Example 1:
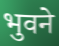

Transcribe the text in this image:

भुवने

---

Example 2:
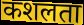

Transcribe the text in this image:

कशलता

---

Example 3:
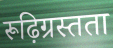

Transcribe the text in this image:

रूढ़िग्रस्तता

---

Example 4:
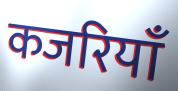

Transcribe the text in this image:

कजरियाँ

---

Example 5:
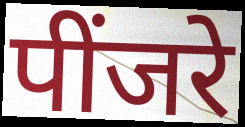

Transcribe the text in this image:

पींजरे